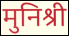
मुनिश्री